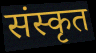
संस्कृत